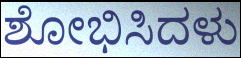
ಶೋಭಿಸಿದಳು